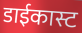
डाईकास्ट